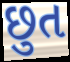
છુત